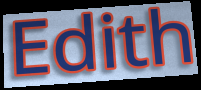
Edith